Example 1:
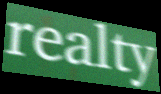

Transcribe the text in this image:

realty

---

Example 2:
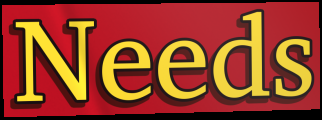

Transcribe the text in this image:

Needs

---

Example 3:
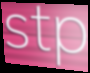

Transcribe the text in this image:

stp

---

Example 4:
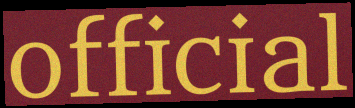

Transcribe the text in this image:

official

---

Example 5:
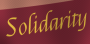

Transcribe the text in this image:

Solidarity